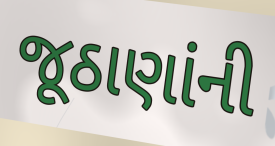
જૂઠાણાંની